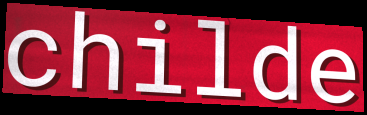
childe